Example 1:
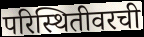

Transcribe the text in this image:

परिस्थितीवरची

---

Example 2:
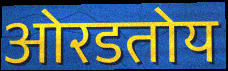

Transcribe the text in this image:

ओरडतोय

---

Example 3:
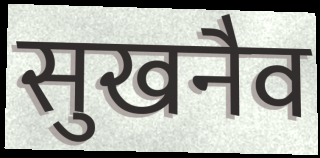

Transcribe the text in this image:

सुखनैव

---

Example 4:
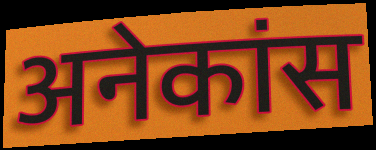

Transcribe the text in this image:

अनेकांस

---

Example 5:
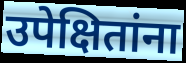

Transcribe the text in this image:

उपेक्षितांना